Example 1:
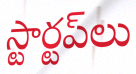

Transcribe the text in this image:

స్టార్టప్‌లు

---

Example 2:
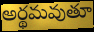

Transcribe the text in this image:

అర్థమవుతూ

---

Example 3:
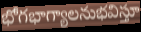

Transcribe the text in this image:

భోగభాగ్యాలనుభవిస్తూ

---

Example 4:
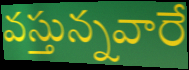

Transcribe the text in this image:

వస్తున్నవారే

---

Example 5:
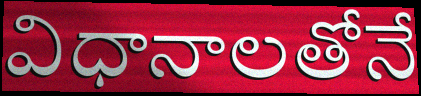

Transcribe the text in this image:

విధానాలతోనే